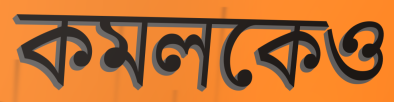
কমলকেও